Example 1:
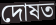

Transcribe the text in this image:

দোষত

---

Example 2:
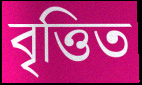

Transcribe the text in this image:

বৃত্তিত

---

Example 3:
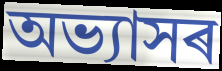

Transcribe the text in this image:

অভ্যাসৰ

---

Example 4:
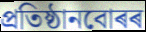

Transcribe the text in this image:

প্ৰতিষ্ঠানবোৰৰ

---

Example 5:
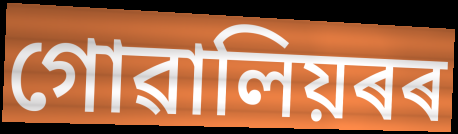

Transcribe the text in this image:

গোৱালিয়ৰৰ